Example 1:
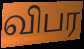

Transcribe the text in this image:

விபர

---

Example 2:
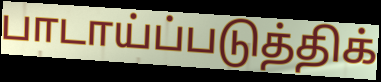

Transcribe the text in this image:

பாடாய்ப்படுத்திக்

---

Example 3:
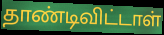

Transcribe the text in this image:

தாண்டிவிட்டாள்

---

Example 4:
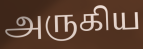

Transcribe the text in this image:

அருகிய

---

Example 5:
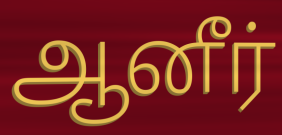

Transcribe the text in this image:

ஆனீர்